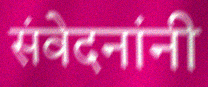
संवेदनांनी